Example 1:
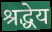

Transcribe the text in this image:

श्रद्धेय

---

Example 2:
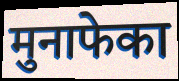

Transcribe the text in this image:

मुनाफेका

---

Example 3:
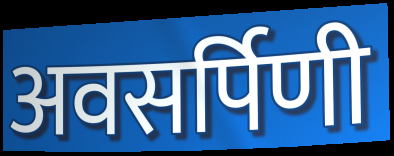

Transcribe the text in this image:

अवसर्पिणी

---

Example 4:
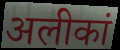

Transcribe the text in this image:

अलीकां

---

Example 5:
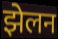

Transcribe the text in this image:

झेलन